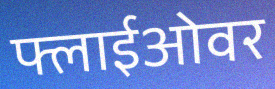
फ्लाईओवर